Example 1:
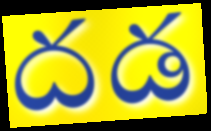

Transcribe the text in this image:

దడ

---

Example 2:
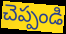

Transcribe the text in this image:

చెప్పండి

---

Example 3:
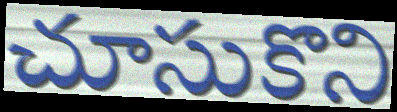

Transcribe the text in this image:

చూసుకొని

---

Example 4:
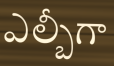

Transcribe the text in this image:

ఎల్బీగా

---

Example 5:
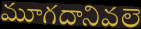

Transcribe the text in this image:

మూగదానివలె